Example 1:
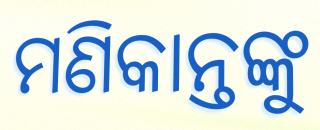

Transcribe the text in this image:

ମଣିକାନ୍ତଙ୍କୁ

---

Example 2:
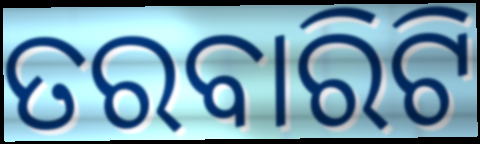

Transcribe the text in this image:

ତରବାରିଟି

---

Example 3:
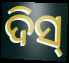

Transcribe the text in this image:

ଦିସ୍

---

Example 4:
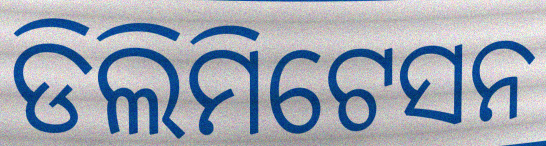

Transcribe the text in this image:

ଡିଲିମିଟେସନ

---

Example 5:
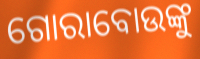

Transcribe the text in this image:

ଗୋରାବୋଉଙ୍କୁ